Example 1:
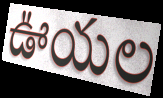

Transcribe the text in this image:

ఊయల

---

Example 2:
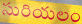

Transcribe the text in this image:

సురియలం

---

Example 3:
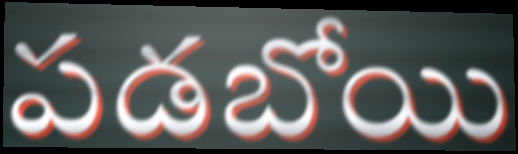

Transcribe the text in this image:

పడబోయి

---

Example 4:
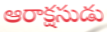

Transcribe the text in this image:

ఆరాక్షసుడు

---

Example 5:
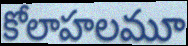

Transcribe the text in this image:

కోలాహలమూ